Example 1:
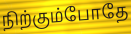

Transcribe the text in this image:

நிற்கும்போதே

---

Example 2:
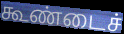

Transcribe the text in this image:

கூண்டைச்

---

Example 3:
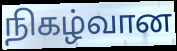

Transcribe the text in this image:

நிகழ்வான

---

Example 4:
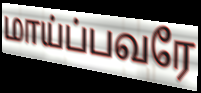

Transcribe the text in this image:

மாய்ப்பவரே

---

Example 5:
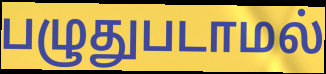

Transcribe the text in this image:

பழுதுபடாமல்